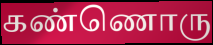
கண்ணொரு